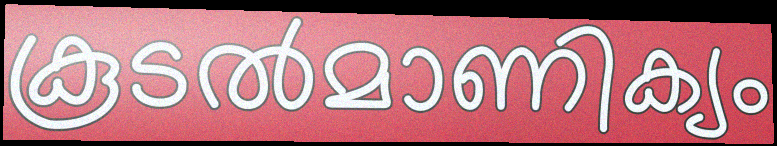
കൂടൽമാണിക്യം